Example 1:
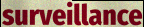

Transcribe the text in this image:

surveillance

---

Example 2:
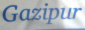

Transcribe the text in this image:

Gazipur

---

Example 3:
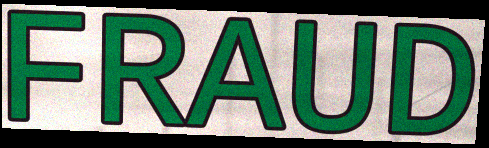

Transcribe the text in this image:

FRAUD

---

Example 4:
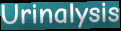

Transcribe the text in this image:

Urinalysis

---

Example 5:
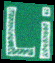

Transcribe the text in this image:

Li